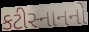
કટીસ્નાનનો